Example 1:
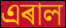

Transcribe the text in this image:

এৰাল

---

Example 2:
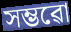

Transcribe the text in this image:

সম্ভৱো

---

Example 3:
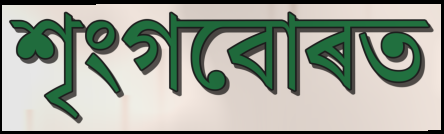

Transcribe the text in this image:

শৃংগবোৰত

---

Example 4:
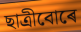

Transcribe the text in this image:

ছাত্ৰীবোৰে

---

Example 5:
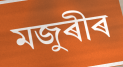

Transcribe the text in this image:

মজুৰীৰ